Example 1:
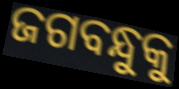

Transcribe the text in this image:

ଜଗବନ୍ଧୁକୁ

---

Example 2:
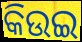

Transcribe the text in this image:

କିଉଇ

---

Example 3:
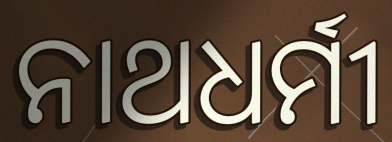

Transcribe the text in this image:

ନାଥଧର୍ମୀ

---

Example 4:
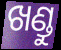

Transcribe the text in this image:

ଖଣ୍ଡୁ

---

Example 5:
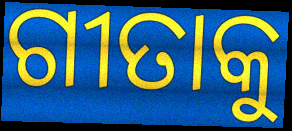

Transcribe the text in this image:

ଗୀତାକୁ